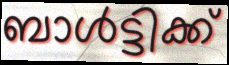
ബാൾട്ടിക്ക്